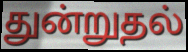
துன்றுதல்